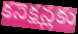
కనెక్షన్లకు